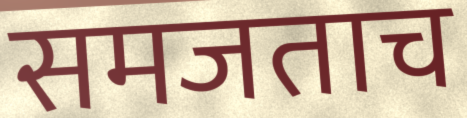
समजताच